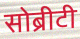
सोब्रीटी